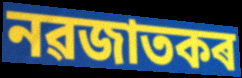
নৱজাতকৰ